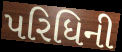
પરિધિની